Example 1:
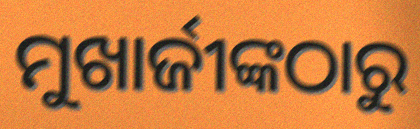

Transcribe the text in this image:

ମୁଖାର୍ଜୀଙ୍କଠାରୁ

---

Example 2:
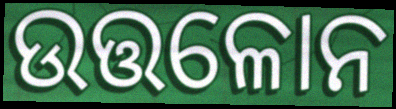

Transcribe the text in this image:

ଉତ୍ତଳୋନ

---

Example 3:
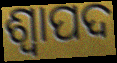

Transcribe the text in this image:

ଶ୍ୱାପଦ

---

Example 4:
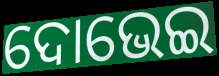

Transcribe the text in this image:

ଦୋଭେଇ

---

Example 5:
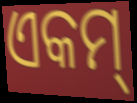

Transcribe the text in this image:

ଏକମ୍